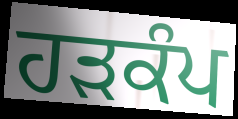
ਹਡ਼ਕੰਪ